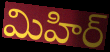
మిహిర్